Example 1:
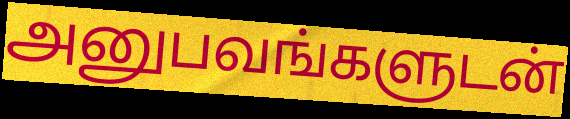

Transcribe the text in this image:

அனுபவங்களுடன்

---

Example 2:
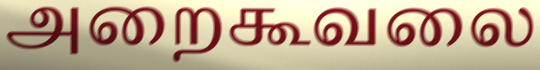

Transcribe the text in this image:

அறைகூவலை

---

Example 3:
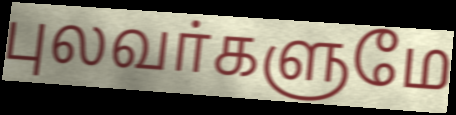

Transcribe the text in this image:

புலவர்களுமே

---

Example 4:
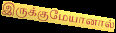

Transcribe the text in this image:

இருக்குமேயானால்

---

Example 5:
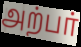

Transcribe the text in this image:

அற்பர்